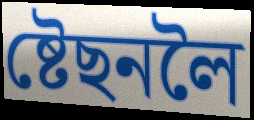
ষ্টেছনলৈ